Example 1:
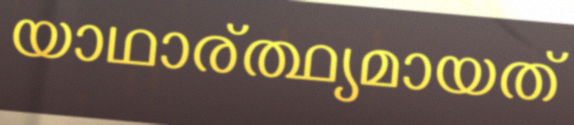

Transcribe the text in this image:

യാഥാര്ത്ഥ്യമായത്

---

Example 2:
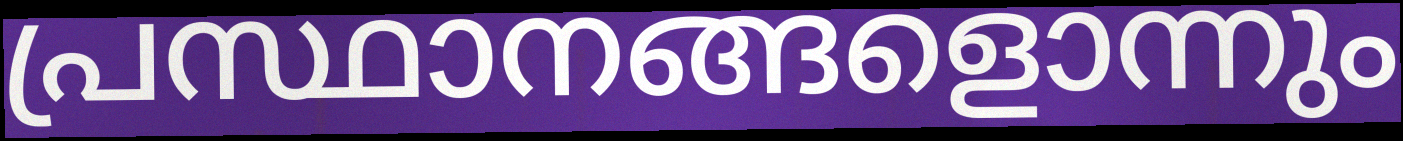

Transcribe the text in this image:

പ്രസ്ഥാനങ്ങളൊന്നും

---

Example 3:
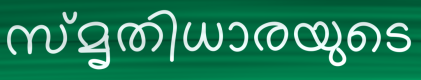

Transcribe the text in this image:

സ്മൃതിധാരയുടെ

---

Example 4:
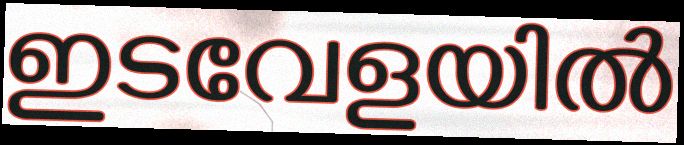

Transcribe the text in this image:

ഇടവേളയിൽ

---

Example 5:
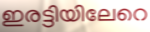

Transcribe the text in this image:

ഇരട്ടിയിലേറെ